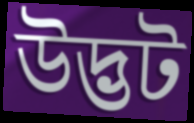
উদ্ভট